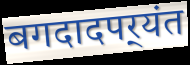
बगदादपर्यंत